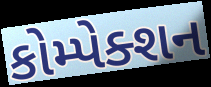
કોમ્પેક્શન